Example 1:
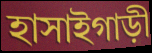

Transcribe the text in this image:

হাসাইগাড়ী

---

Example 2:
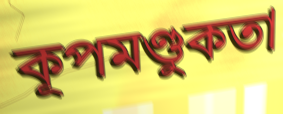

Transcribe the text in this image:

কূপমণ্ডুকতা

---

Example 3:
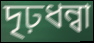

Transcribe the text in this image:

দৃঢ়ধন্বা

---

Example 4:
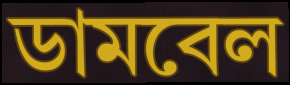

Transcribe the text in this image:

ডামবেল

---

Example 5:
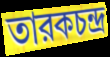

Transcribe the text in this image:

তারকচন্দ্র